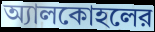
অ্যালকোহলের